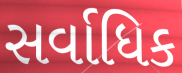
સર્વાધિક